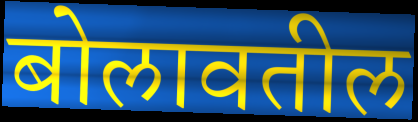
बोलावतील